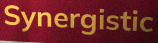
Synergistic